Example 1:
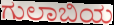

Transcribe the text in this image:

ಗುಲಾಬಿಯ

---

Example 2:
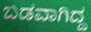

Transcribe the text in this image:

ಬಡವಾಗಿದ್ದ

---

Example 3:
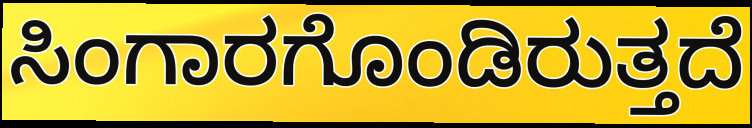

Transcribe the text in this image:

ಸಿಂಗಾರಗೊಂಡಿರುತ್ತದೆ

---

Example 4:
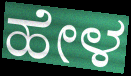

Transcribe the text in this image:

ಹೇಳ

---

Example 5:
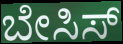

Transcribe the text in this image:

ಬೇಸಿಸ್